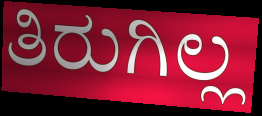
ತಿರುಗಿಲ್ಲ